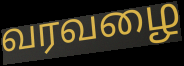
வரவழை